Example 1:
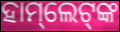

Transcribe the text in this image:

ହାମ୍‌ଲେଟ୍‌ଙ୍କ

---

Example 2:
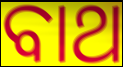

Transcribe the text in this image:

ବାଥ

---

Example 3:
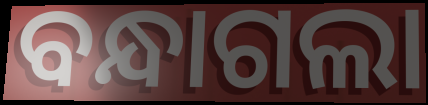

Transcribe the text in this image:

ବନ୍ଧାଗଲା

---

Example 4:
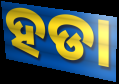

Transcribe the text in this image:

ହଡା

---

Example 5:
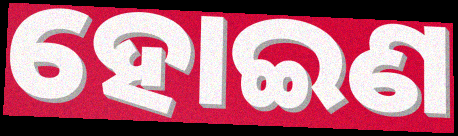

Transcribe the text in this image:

ହୋଇଣ